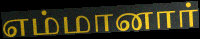
எம்மானார்